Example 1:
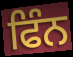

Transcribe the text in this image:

ਫਿੰਨ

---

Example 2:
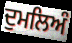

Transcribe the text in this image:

ਦੁਮਲਿਅੰ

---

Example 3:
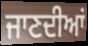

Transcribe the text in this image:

ਜਾਣਦੀਆਂ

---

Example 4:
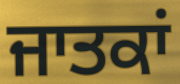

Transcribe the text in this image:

ਜਾਤਕਾਂ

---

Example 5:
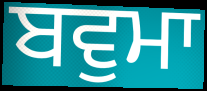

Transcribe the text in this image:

ਬਵੁਮਾ